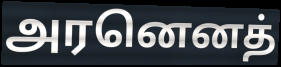
அரனெனத்